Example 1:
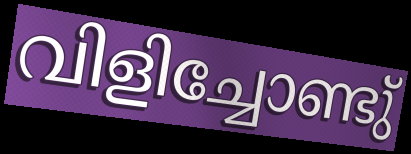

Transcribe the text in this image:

വിളിച്ചോണ്ടു്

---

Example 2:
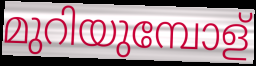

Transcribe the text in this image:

മുറിയുമ്പോള്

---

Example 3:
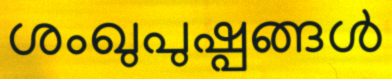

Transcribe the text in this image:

ശംഖുപുഷ്പങ്ങൾ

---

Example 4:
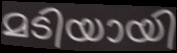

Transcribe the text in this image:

മടിയായി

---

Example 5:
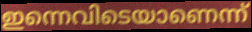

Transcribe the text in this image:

ഇന്നെവിടെയാണെന്ന്